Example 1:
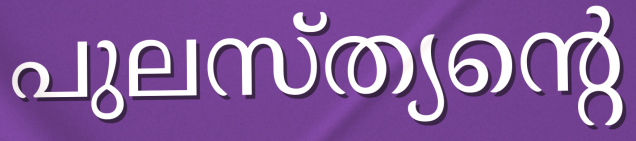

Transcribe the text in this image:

പുലസ്ത്യന്റെ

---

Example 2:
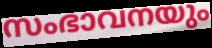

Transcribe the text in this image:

സംഭാവനയും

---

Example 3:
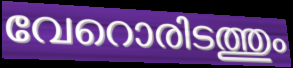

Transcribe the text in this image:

വേറൊരിടത്തും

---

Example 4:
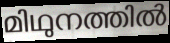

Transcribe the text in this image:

മിഥുനത്തിൽ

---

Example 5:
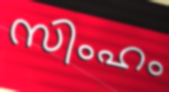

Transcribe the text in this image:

സിംഹം